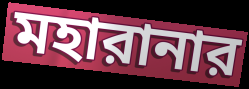
মহারানার